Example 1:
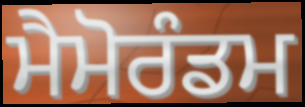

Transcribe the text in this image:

ਮੈਮੋਰੰਡਮ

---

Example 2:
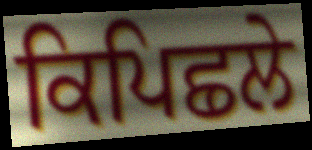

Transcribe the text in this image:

ਕਿਪਿਛਲੇ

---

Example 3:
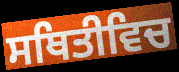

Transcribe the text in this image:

ਸਥਿਤੀਵਿਚ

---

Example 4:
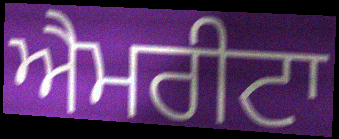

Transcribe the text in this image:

ਐਮਰੀਟਾ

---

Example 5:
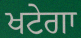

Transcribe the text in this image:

ਖਟੇਗਾ